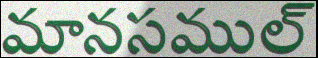
మానసముల్